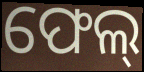
ଫେଲ୍